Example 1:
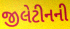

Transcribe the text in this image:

જીલેટીનની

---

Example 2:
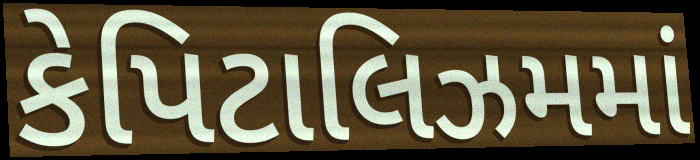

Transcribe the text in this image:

કેપિટાલિઝમમાં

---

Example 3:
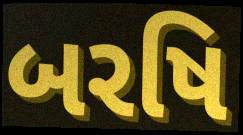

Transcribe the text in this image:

બરષિ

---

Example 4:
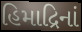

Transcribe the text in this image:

હિમાદ્રિનાં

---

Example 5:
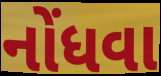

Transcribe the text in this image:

નોંધવા